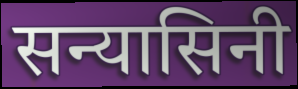
सन्यासिनी